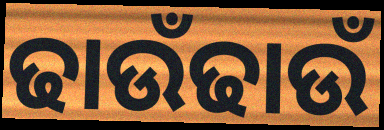
ଢାଉଁଢାଉଁ